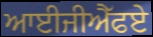
ਆਈਜੀਐੱਫਏ